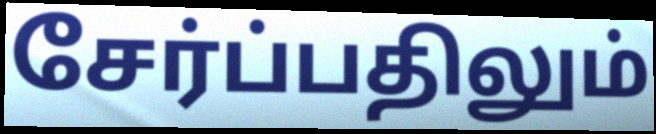
சேர்ப்பதிலும்